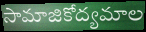
సామాజికోద్యమాల